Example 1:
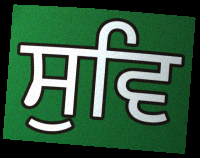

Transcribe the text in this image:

ਸੁਵਿ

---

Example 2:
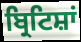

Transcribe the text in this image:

ਬ੍ਰਿਟਿਸ਼ਾਂ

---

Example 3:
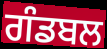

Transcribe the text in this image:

ਗੰਡਬਲ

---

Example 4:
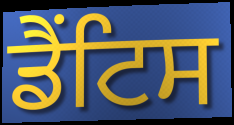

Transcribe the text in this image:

ਡੈਂਟਿਸ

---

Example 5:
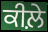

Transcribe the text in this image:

ਕੀਲ਼ੇ